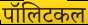
पॉलिटकल